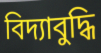
বিদ্যাবুদ্ধি